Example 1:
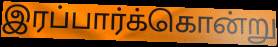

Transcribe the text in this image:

இரப்பார்க்கொன்று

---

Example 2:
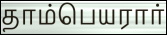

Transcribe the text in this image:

தாம்பெயரார்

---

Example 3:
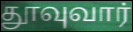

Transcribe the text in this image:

தூவுவார்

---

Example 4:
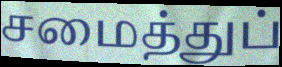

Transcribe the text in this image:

சமைத்துப்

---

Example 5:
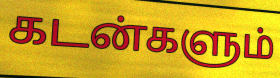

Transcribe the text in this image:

கடன்களும்